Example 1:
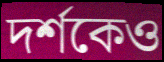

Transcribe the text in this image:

দৰ্শকেও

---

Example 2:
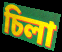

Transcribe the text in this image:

চিলা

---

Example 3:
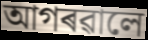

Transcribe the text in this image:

আগৰৱালে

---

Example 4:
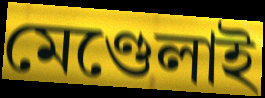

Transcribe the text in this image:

মেণ্ডেলাই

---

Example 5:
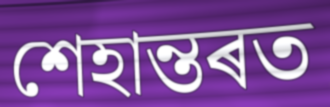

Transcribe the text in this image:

শেহান্তৰত